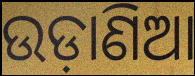
ଉଡ଼ାଣିଆ